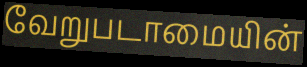
வேறுபடாமையின்